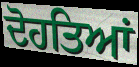
ਦੋਹਤਿਆਂ